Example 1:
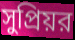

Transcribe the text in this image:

সুপ্রিয়র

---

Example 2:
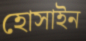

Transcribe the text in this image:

হোসাইন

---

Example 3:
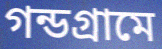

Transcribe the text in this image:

গন্ডগ্রামে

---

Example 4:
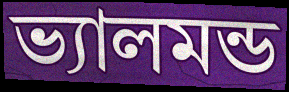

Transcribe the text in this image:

ভ্যালমন্ড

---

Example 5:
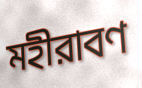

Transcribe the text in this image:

মহীরাবণ